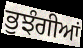
ਭੁਝੰਗੀਆਂ